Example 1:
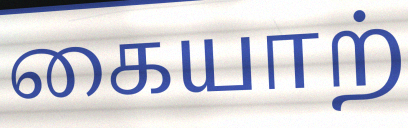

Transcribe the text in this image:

கையாற்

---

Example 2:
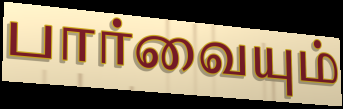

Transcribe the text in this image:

பார்வையும்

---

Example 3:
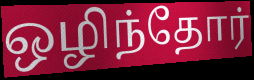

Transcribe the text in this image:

ஒழிந்தோர்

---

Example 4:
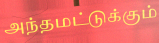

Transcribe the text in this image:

அந்தமட்டுக்கும்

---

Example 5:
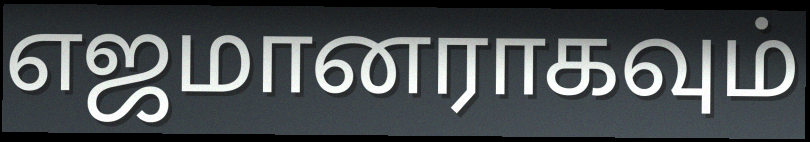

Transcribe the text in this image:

எஜமானராகவும்